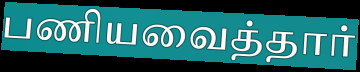
பணியவைத்தார்